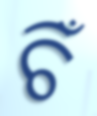
ଚିଁ